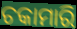
ଚକାମାରି